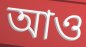
আও